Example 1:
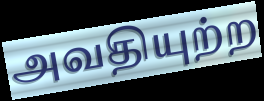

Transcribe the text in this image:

அவதியுற்ற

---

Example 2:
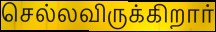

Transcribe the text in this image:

செல்லவிருக்கிறார்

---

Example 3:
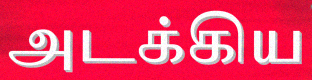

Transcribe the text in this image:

அடக்கிய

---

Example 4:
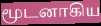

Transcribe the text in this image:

மூடனாகிய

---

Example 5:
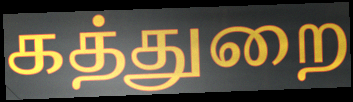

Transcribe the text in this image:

கத்துறை